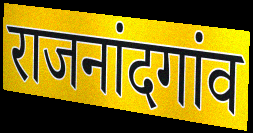
राजनांदगांव